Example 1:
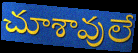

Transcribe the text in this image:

చూశావులే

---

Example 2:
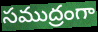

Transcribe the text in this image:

సముద్రంగా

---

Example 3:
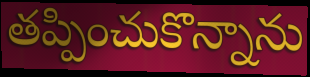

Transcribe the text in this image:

తప్పించుకొన్నాను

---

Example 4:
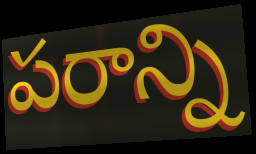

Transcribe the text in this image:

పరాన్ని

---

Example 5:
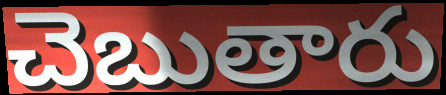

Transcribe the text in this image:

చెబుతారు